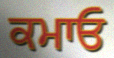
ਕਮਾਓ